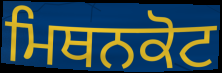
ਮਿਥਨਕੋਟ